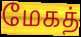
மேகத்